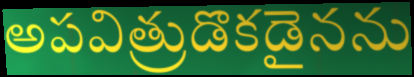
అపవిత్రుడొకడైనను